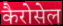
कैरोसेल